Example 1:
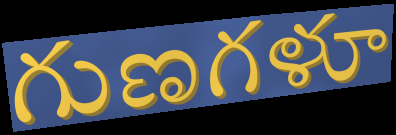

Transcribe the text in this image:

గుణగళూ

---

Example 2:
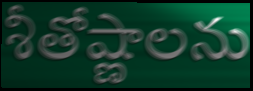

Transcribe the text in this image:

శీతోష్ణాలను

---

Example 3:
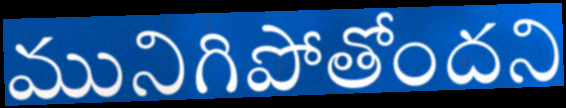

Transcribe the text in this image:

మునిగిపోతోందని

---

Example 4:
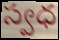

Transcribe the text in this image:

స్వధ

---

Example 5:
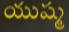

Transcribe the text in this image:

యుష్మ